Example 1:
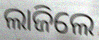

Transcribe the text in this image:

ଲାଜିଲେ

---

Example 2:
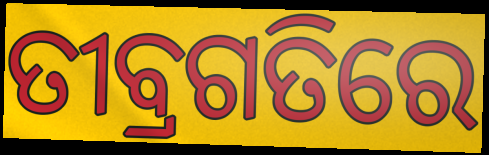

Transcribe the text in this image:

ତୀବ୍ରଗତିରେ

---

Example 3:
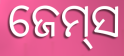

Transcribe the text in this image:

ଜେମ୍‌ସ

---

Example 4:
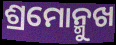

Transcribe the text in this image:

ଶ୍ରମୋନ୍ମୁଖ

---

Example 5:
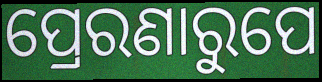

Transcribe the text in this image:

ପ୍ରେରଣାରୁପେ